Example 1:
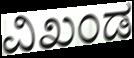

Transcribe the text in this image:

ವಿಖಂಡ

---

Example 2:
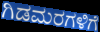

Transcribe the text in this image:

ಗಿಡಮರಗಳಿಗೆ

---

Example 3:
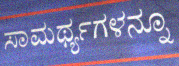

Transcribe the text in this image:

ಸಾಮರ್ಥ್ಯಗಳನ್ನೂ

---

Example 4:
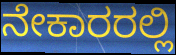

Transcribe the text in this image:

ನೇಕಾರರಲ್ಲಿ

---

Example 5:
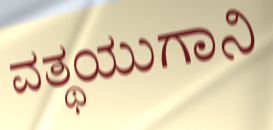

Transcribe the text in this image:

ವತ್ಥಯುಗಾನಿ